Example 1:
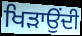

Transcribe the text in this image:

ਖਿੜਾਉਂਦੀ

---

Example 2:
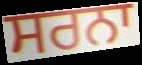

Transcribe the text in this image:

ਸਰਨਾ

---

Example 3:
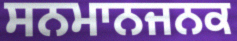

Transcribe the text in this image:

ਸਨਮਾਨਜਨਕ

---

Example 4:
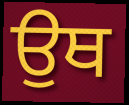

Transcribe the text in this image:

ਉਥ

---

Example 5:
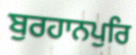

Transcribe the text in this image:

ਬੁਰਹਾਨਪੁਰਿ